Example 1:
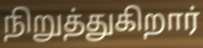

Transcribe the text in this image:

நிறுத்துகிறார்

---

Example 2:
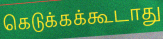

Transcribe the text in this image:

கெடுக்கக்கூடாது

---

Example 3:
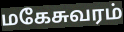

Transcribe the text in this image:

மகேசுவரம்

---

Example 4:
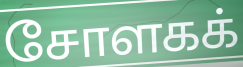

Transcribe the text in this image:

சோளகக்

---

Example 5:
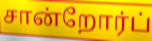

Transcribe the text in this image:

சான்றோர்ப்